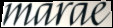
marae